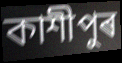
কাশীপুৰ